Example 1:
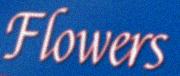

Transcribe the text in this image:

Flowers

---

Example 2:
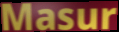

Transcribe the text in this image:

Masur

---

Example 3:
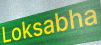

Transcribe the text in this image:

Loksabha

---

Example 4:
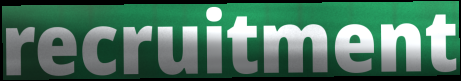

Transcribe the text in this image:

recruitment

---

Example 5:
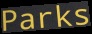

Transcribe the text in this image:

Parks